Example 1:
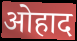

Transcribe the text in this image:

ओहाद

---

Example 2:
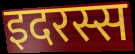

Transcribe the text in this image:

इदरस्स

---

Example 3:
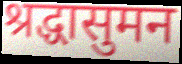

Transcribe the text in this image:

श्रद्धासुमन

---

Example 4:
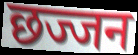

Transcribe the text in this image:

छज्जन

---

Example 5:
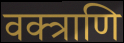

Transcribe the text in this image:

वक्त्राणि